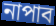
নাপাব